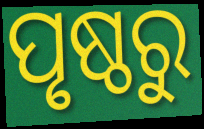
ପୃଷ୍ଠରୁ